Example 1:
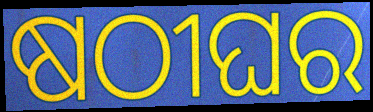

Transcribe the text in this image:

ଷଠୀଘର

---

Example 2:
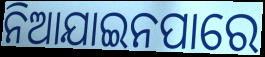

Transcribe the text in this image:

ନିଆଯାଇନପାରେ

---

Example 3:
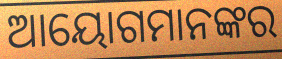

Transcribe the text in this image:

ଆୟୋଗମାନଙ୍କର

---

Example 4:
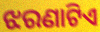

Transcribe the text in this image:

ଝରଣାଟିଏ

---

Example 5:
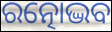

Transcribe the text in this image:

ରତ୍ନୋଦ୍ଭବ